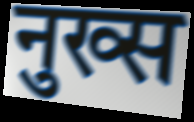
नुख्स